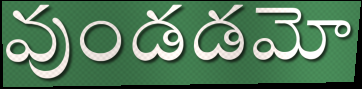
వుండడమో